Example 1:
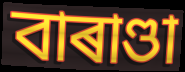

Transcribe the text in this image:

বাৰাণ্ডা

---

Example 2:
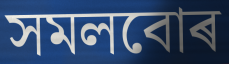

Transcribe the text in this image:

সমলবোৰ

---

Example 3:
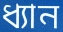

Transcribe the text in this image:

ধ্যান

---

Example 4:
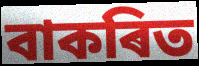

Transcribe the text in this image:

বাকৰিত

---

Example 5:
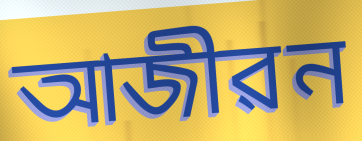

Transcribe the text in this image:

আজীৱন